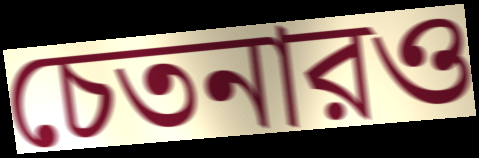
চেতনারও